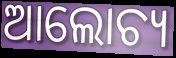
ଆଲୋଚ୍ୟ